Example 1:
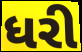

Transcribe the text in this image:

ધરી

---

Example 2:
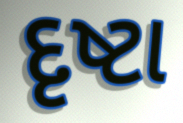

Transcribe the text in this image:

દૃષ્ટા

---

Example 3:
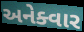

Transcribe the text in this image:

અનેક્વાર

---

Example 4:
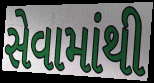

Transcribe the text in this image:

સેવામાંથી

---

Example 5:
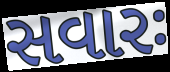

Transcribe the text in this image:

સવારઃ